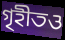
গৃহীতও